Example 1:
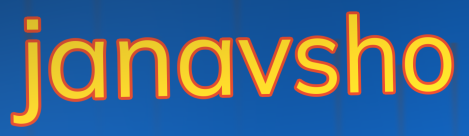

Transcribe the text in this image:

janavsho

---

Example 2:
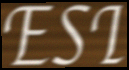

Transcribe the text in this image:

ESI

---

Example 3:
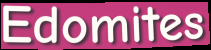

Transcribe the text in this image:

Edomites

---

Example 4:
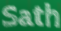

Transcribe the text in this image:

Sath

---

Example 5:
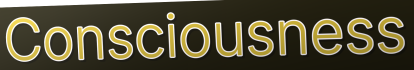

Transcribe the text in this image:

Consciousness